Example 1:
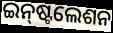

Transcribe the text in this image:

ଇନ୍‌ଷ୍ଟଲେଶନ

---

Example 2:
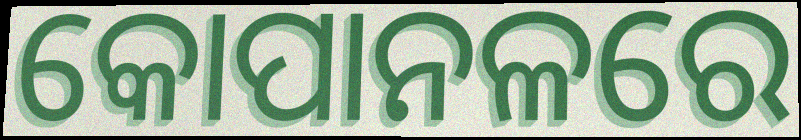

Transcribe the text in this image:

କୋପାନଳରେ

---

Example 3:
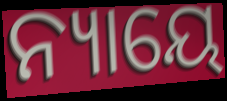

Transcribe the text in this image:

ନ୍ୟାୟେ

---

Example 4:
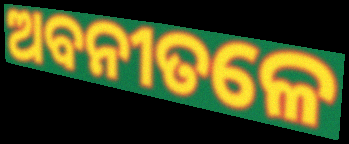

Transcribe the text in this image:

ଅବନୀତଳେ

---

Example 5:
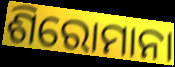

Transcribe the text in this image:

ଶିରୋମାନା